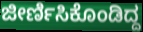
ಜೀರ್ಣಿಸಿಕೊಂಡಿದ್ದ